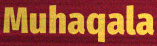
Muhaqala